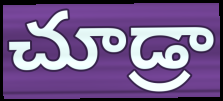
చూడ్రా